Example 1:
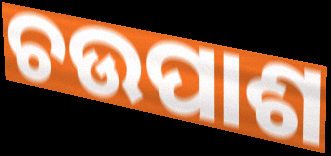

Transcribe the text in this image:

ଚଉପାଶ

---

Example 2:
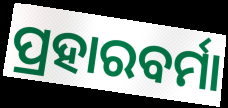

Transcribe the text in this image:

ପ୍ରହାରବର୍ମା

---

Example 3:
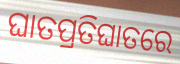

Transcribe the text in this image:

ଘାତପ୍ରତିଘାତରେ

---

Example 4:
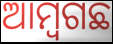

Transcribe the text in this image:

ଆମ୍ୱଗଛ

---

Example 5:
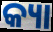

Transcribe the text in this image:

କ୍ୟା